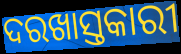
ଦରଖାସ୍ତକାରୀ